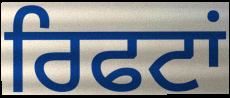
ਰਿਫਟਾਂ